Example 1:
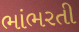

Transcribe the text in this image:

ભાંભરતી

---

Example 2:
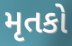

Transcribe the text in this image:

મૃતકો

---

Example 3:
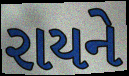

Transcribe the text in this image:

રાયને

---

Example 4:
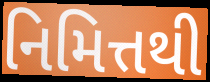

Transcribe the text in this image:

નિમિત્તથી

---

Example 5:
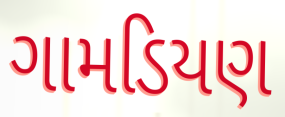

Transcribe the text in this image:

ગામડિયણ